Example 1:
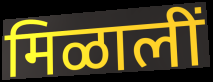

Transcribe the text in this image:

मिळालीं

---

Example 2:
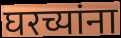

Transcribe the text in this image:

घरच्यांना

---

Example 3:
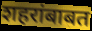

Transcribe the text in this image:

शहरांबाबत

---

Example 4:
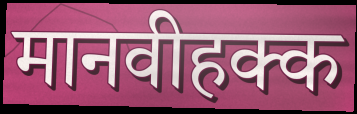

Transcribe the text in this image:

मानवीहक्क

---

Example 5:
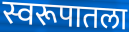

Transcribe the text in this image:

स्वरूपातला